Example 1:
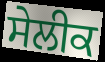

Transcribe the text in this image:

ਸੇਲੀਕ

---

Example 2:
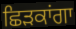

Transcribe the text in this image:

ਛਿੜਕਾਂਗਾ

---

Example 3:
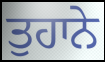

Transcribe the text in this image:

ਤੁਹਾਨੇ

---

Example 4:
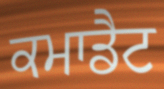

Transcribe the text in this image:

ਕਮਾਡੈਟ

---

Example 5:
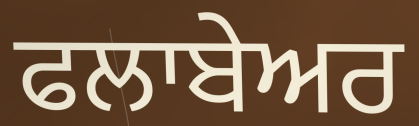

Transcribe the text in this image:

ਫਲਾਬੇਅਰ